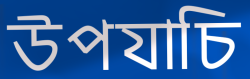
উপযাচি